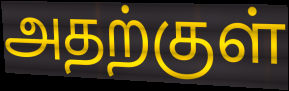
அதற்குள்